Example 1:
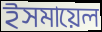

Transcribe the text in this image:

ইসমায়েল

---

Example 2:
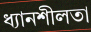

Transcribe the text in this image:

ধ্যানশীলতা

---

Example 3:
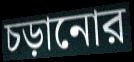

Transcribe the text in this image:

চড়ানোর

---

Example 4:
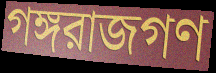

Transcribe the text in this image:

গঙ্গরাজগণ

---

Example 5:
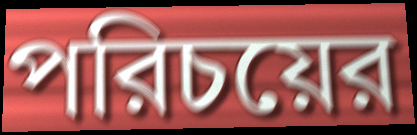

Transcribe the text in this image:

পরিচয়ের